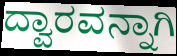
ದ್ವಾರವನ್ನಾಗಿ